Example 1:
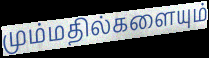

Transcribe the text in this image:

மும்மதில்களையும்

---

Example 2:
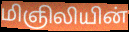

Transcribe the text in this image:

மிஞிலியின்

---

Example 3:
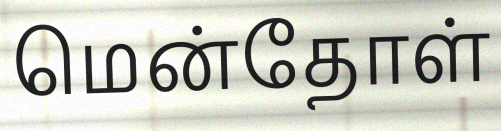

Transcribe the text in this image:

மென்தோள்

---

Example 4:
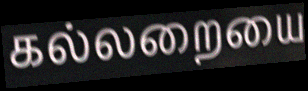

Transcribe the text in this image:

கல்லறையை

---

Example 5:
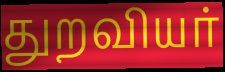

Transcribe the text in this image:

துறவியர்